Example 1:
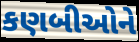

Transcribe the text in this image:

કણબીઓને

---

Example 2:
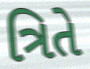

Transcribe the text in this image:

ત્રિતે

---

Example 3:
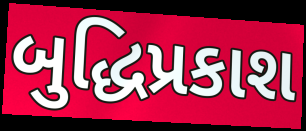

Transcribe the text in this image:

બુદ્ધિપ્રકાશ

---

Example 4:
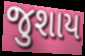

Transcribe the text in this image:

જુશાય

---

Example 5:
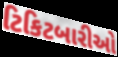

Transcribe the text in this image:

ટિકિટબારીઓ